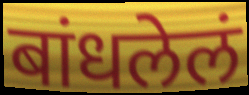
बांधलेलं